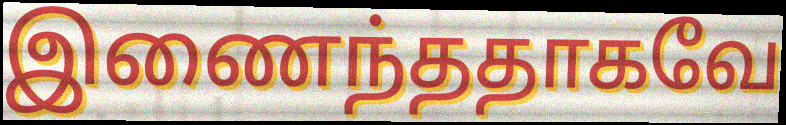
இணைந்ததாகவே